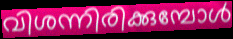
വിശന്നിരിക്കുമ്പോൾ